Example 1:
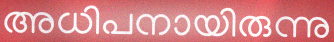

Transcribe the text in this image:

അധിപനായിരുന്നു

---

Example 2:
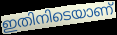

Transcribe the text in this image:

ഇതിനിടെയാണ്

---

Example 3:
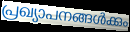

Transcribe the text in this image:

പ്രഖ്യാപനങ്ങൾക്കും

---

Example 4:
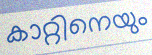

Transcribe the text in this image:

കാറ്റിനെയും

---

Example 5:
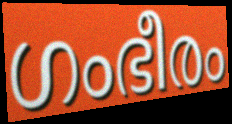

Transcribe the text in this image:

ഗംഭീരം